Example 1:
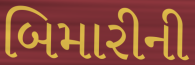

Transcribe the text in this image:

બિમારીની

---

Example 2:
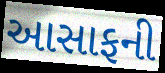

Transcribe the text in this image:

આસાફની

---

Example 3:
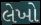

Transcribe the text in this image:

લેખો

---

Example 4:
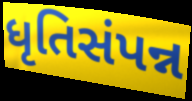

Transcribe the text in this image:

ધૃતિસંપન્ન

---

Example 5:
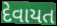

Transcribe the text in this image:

દેવાયત